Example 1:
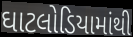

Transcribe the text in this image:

ઘાટલોડિયામાંથી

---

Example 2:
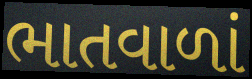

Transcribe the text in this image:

ભાતવાળાં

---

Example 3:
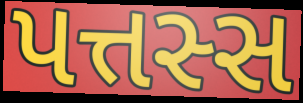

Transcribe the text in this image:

પત્તસ્સ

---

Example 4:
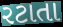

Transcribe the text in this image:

રટાતા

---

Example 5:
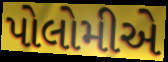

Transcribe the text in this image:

પોલોમીએ